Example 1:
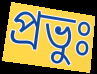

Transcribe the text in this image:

প্রভুঃ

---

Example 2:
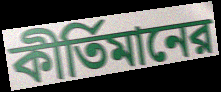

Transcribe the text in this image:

কীর্তিমানের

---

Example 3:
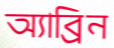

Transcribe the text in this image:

অ্যাব্রিন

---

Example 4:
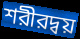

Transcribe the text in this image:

শরীরদ্বয়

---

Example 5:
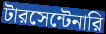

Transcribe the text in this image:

টারসেন্টেনারি